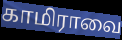
காமிராவை